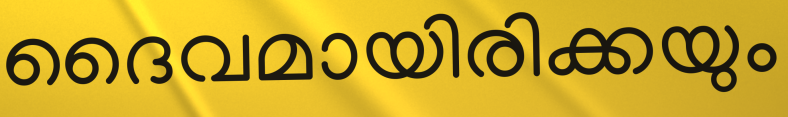
ദൈവമായിരിക്കയും